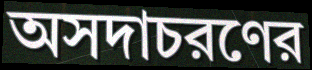
অসদাচরণের